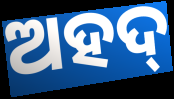
ଅହଦ୍